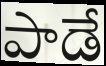
పాడే